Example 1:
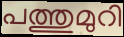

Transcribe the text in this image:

പത്തുമുറി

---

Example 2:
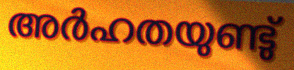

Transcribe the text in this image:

അർഹതയുണ്ടു്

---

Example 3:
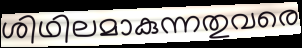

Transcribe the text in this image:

ശിഥിലമാകുന്നതുവരെ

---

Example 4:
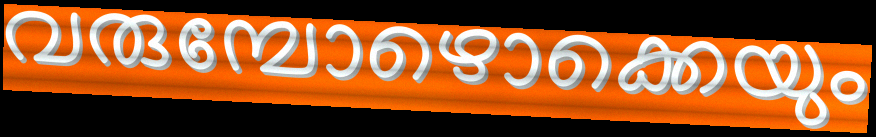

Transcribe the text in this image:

വരുമ്പോഴൊക്കെയും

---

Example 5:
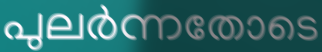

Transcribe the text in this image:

പുലർന്നതോടെ